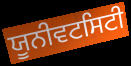
ਯੂਨੀਵਟਸਿਟੀ